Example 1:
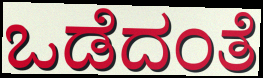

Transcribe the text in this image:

ಒಡೆದಂತೆ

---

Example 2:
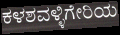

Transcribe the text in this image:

ಕಳಶವಳ್ಳಿಗೇರಿಯ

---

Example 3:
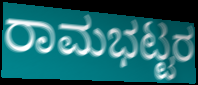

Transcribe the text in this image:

ರಾಮಭಟ್ಟರ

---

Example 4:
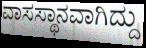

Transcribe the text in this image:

ವಾಸಸ್ಥಾನವಾಗಿದ್ದು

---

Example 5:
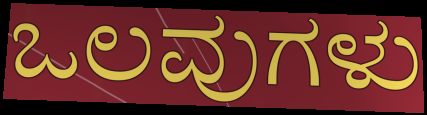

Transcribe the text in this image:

ಒಲವುಗಳು